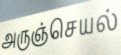
அருஞ்செயல்